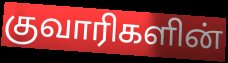
குவாரிகளின்